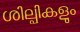
ശില്പികളും